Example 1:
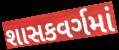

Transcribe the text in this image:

શાસકવર્ગમાં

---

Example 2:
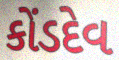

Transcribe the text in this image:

કોંડદેવ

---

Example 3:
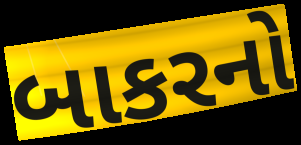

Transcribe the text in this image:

બાકરનો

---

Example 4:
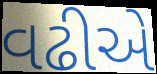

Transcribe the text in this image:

વઢીએ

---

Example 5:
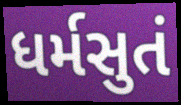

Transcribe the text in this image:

ધર્મસુતં